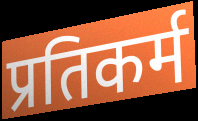
प्रतिकर्म